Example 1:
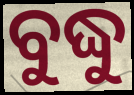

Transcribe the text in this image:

ବୁଦ୍ଧୁ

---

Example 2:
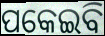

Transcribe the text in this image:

ପକେଇବି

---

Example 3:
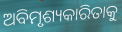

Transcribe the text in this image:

ଅବିମୃଶ୍ୟକାରିତାକୁ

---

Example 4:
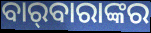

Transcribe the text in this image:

ବାର୍‌ବାରାଙ୍କର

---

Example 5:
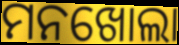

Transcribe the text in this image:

ମନଖୋଲା